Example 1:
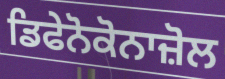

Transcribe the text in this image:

ਡਿਫੇਨੋਕੋਨਾਜ਼ੋਲ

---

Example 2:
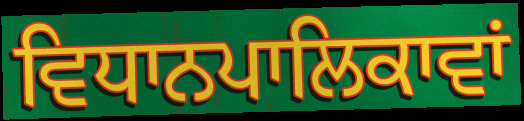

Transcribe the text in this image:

ਵਿਧਾਨਪਾਲਿਕਾਵਾਂ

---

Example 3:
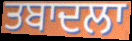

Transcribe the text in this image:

ਤਬਾਦਲਾ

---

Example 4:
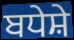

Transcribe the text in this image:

ਬਧੇਸ਼ੇ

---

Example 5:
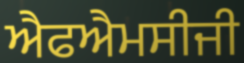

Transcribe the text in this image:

ਐਫਐਮਸੀਜੀ